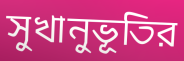
সুখানুভূতির